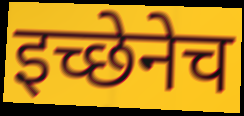
इच्छेनेच